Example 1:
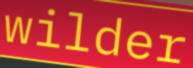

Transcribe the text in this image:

wilder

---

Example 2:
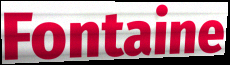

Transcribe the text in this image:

Fontaine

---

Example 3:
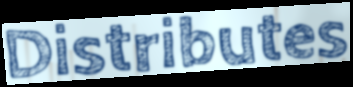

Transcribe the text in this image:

Distributes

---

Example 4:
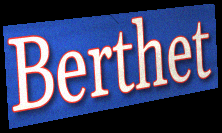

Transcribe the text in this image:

Berthet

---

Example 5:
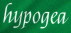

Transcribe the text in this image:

hypogea